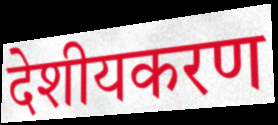
देशीयकरण